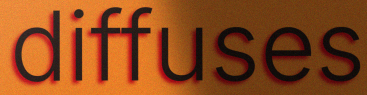
diffuses